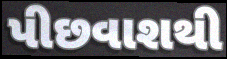
પીછવાશથી